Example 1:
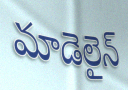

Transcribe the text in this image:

మాడెలైన్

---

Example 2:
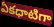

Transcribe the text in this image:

ఏకధాటిగా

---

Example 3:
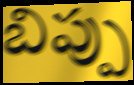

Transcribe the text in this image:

బిప్పు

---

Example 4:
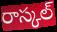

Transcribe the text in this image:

రాస్కల్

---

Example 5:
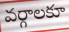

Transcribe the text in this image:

వర్గాలకూ